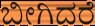
ಬೀಗಿದರೆ